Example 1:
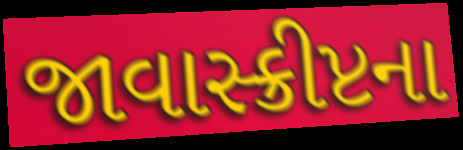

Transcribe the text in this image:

જાવાસ્ક્રીપ્ટના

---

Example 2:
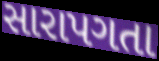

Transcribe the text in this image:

સારાપગતા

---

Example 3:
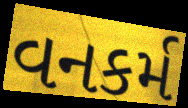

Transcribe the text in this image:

વનકર્મ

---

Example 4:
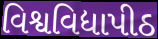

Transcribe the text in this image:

વિશ્વવિદ્યાપીઠ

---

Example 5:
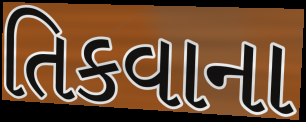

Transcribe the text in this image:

તિકવાના